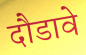
दौडावे